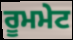
ਰੂਮਮੇਟ